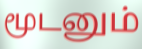
மூடனும்